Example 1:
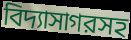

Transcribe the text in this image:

বিদ্যাসাগরসহ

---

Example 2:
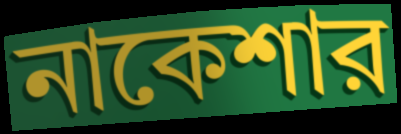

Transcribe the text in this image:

নাকেশার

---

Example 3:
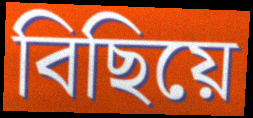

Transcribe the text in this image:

বিছিয়ে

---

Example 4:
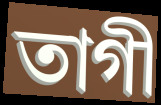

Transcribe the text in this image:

তাগী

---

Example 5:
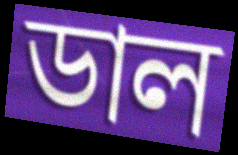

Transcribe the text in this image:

ডাল